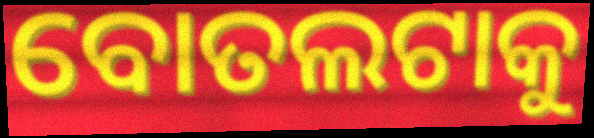
ବୋତଲଟାକୁ